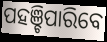
ପହଞ୍ଚିପାରିବେ